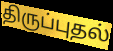
திருப்புதல்